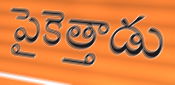
పైకెత్తాడు